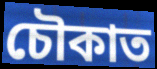
চৌকাত